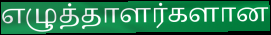
எழுத்தாளர்களான